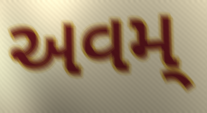
અવમ્